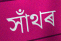
সাঁথৰ